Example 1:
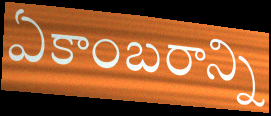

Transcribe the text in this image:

ఏకాంబరాన్ని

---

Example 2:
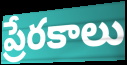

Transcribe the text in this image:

ప్రేరకాలు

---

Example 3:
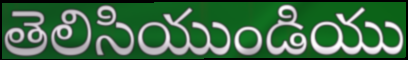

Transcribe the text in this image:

తెలిసియుండియు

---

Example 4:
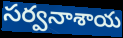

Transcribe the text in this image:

సర్వనాశాయ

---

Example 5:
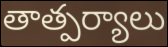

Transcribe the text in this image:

తాత్పర్యాలు